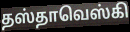
தஸ்தாவெஸ்கி